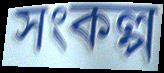
সংকল্প